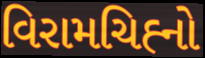
વિરામચિહ્‍નો